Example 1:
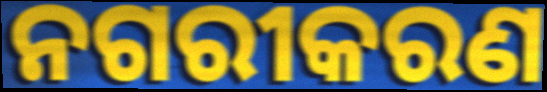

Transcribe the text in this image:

ନଗରୀକରଣ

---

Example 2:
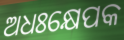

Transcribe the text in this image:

ଅଧଃକ୍ଷେପକ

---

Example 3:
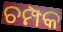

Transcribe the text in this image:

ଚମ୍ପକ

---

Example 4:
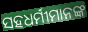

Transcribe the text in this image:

ସହଧର୍ମୀମାନଙ୍କ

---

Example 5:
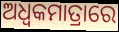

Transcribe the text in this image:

ଅଧ୍ଵକମାତ୍ରାରେ